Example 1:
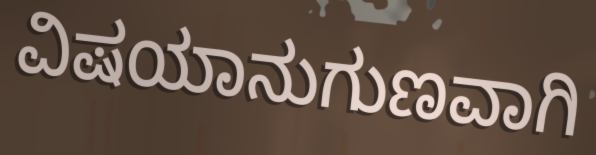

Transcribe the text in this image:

ವಿಷಯಾನುಗುಣವಾಗಿ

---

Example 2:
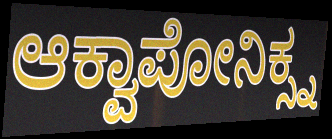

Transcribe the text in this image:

ಆಕ್ವಾಪೋನಿಕ್ಸ್ನ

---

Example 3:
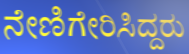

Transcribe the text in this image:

ನೇಣಿಗೇರಿಸಿದ್ದರು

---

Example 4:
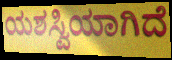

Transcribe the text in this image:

ಯಶಸ್ವಿಯಾಗಿದೆ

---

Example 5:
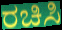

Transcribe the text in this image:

ರಚಿಸಿ